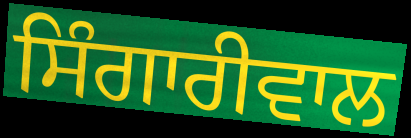
ਸਿੰਗਾਰੀਵਾਲ